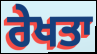
ਰੇਖਤਾ